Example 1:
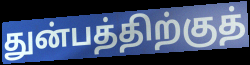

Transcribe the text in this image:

துன்பத்திற்குத்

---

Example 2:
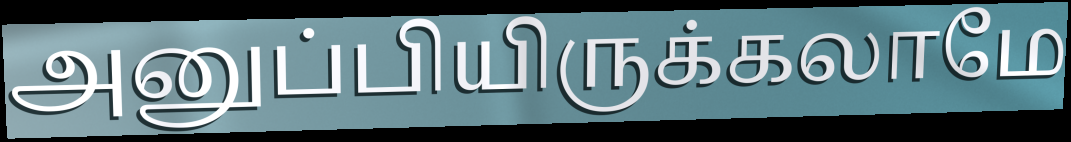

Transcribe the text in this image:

அனுப்பியிருக்கலாமே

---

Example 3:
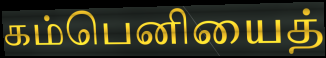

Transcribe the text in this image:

கம்பெனியைத்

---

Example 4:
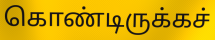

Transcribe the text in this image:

கொண்டிருக்கச்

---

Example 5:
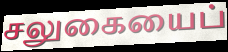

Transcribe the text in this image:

சலுகையைப்